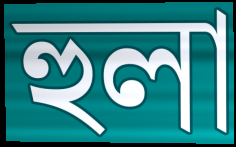
হুলা